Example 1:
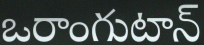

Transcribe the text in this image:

ఒరాంగుటాన్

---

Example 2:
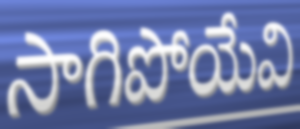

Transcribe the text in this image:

సాగిపోయేవి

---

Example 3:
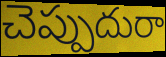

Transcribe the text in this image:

చెప్పుదురా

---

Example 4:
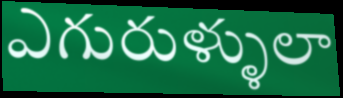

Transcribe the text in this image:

ఎగురుళ్ళులా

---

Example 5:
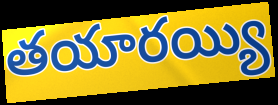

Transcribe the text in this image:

తయారయ్యి